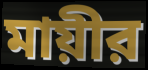
মায়ীর